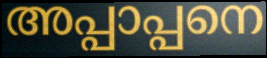
അപ്പാപ്പനെ